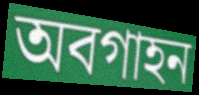
অবগাহন